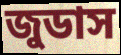
জুডাস